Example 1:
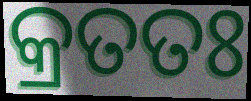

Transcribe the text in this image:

କ୍ରତତଃ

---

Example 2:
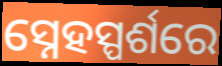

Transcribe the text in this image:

ସ୍ନେହସ୍ପର୍ଶରେ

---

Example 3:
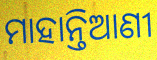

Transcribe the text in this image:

ମାହାନ୍ତିଆଣୀ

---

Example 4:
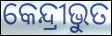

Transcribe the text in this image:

କେନ୍ଦ୍ରୀଭୁତ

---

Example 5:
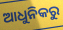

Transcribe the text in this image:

ଆଧୁନିକରୁ